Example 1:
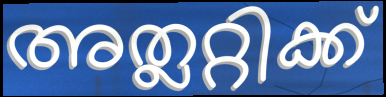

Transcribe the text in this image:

അത്ലറ്റിക്ക്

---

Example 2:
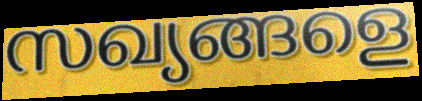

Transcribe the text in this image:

സഖ്യങ്ങളെ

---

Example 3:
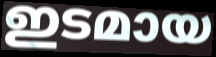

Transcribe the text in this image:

ഇടമായ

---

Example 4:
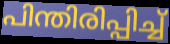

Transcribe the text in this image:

പിന്തിരിപ്പിച്ച്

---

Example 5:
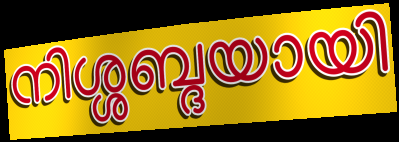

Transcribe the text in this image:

നിശ്ശബ്ദയായി